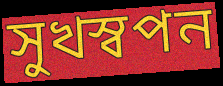
সুখস্বপন